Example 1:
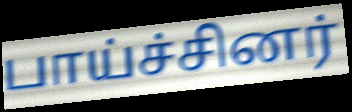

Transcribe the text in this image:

பாய்ச்சினர்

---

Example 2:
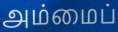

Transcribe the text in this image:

அம்மைப்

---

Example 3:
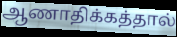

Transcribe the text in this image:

ஆணாதிக்கத்தால்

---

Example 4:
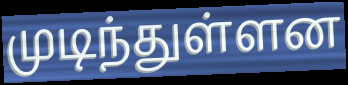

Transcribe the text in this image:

முடிந்துள்ளன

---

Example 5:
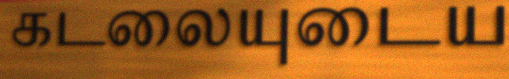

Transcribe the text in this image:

கடலையுடைய